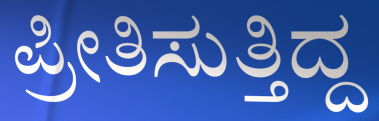
ಪ್ರೀತಿಸುತ್ತಿದ್ದ